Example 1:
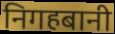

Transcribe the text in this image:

निगहबानी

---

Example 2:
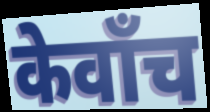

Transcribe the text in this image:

केवाँच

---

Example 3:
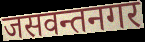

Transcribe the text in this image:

जसवन्तनगर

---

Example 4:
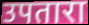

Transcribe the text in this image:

उपतारा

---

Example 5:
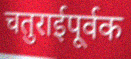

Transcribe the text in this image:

चतुराईपूर्वक